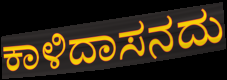
ಕಾಳಿದಾಸನದು